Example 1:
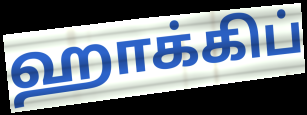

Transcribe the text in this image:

ஹாக்கிப்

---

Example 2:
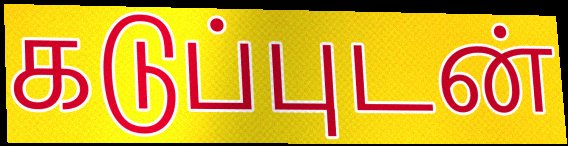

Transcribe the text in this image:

கடுப்புடன்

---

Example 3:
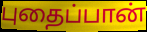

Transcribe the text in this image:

புதைப்பான்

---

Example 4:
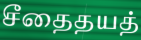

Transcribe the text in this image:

சீதைதயத்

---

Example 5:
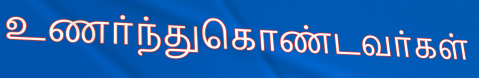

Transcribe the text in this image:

உணர்ந்துகொண்டவர்கள்